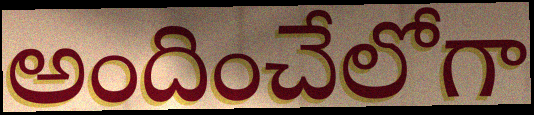
అందించేలోగా